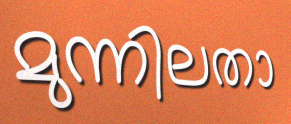
മുന്നിലതാ